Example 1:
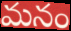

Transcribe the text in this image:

మనం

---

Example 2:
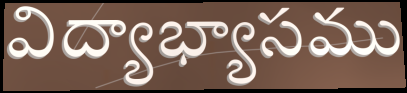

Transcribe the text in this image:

విద్యాభ్యాసము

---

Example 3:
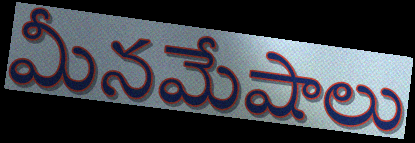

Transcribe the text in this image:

మీనమేషాలు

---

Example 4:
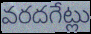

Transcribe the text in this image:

వరదగేట్లు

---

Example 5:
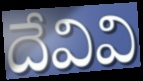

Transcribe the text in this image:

దేవివి